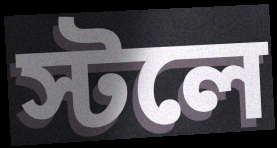
স্টলে